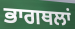
ਭਾਗਥਲਾਂ